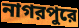
নাগরপুরে